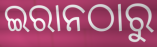
ଇରାନଠାରୁ